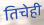
तिचेही